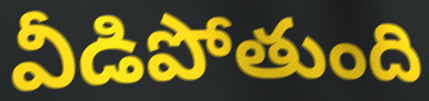
వీడిపోతుంది